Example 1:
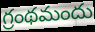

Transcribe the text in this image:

గ్రంథమందు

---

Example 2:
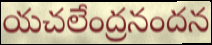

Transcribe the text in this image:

యచలేంద్రనందన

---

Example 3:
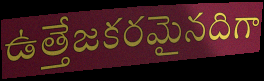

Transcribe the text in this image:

ఉత్తేజకరమైనదిగా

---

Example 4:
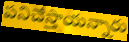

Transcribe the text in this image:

పనిచేస్తాయన్నారు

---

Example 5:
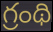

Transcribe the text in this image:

గ్రంథి